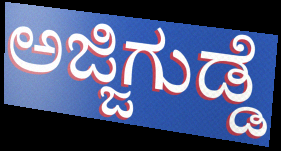
ಅಜ್ಜಿಗುಡ್ಡೆ